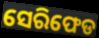
ସେରିଫେଡ